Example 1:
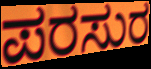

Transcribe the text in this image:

ಪರಸುರ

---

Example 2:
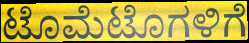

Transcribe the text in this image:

ಟೊಮೆಟೊಗಳಿಗೆ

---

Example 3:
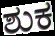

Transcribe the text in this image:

ಶುಕ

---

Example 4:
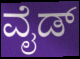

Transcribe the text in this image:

ವೈಡ್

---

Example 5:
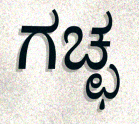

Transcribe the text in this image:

ಗಚ್ಛ